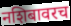
नशिबावरच